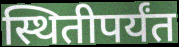
स्थितीपर्यंत